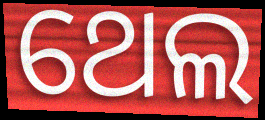
ଥେଲ